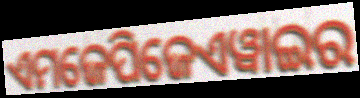
ଏମଜେପିଜେଏୱାଇର